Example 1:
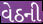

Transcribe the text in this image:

વેઠની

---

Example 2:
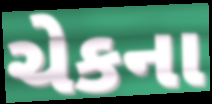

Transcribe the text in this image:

ચેકના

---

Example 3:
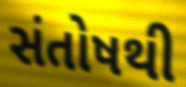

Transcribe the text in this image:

સંતોષથી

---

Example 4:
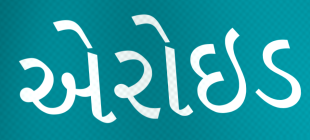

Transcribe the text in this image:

એરોઇડ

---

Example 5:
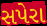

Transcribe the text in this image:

સપેરા